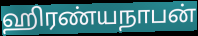
ஹிரண்யநாபன்